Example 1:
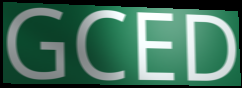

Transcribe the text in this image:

GCED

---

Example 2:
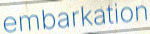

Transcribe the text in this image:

embarkation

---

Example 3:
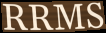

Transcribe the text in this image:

RRMS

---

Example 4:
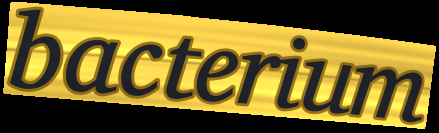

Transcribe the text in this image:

bacterium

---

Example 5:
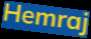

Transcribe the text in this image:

Hemraj